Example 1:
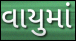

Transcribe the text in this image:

વાયુમાં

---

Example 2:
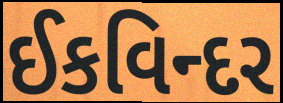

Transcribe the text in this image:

ઈકવિન્દર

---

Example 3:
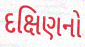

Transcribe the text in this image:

દક્ષિણનો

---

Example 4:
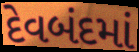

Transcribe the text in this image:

દેવબંદમાં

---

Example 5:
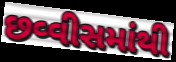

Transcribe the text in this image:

છવ્વીસમાંથી